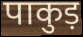
पाकुड़